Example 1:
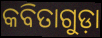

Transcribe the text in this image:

କବିତାଗୁଡ଼ା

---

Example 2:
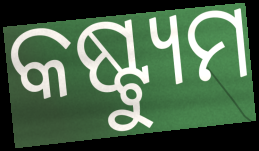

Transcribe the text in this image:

କଷ୍ଟ୍ୟୁମ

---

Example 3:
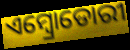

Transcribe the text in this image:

ଏମ୍ବ୍ରୋଡୋରୀ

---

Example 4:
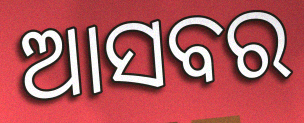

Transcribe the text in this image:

ଆସବର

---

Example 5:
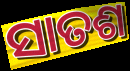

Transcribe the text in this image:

ସାତଶ